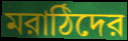
মরাঠিদের